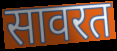
सावरत